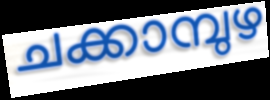
ചക്കാമ്പുഴ